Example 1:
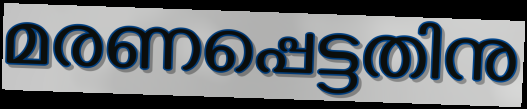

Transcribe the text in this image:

മരണപ്പെട്ടതിനു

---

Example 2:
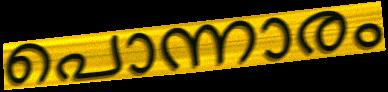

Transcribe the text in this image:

പൊന്നാരം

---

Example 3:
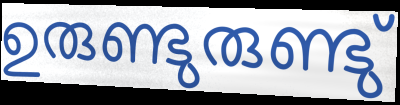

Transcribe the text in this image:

ഉരുണ്ടുരുണ്ടു്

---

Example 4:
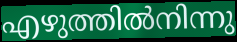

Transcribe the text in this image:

എഴുത്തിൽനിന്നു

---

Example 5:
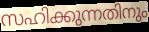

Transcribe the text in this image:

സഹിക്കുന്നതിനും